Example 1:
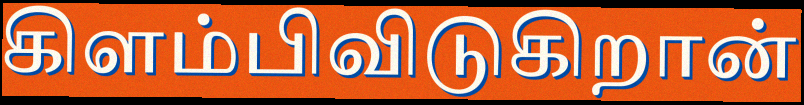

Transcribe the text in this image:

கிளம்பிவிடுகிறான்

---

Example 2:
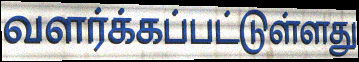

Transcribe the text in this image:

வளர்க்கப்பட்டுள்ளது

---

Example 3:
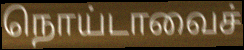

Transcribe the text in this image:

நொய்டாவைச்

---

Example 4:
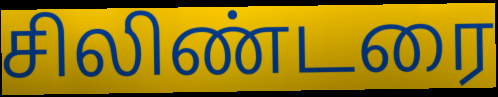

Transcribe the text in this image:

சிலிண்டரை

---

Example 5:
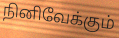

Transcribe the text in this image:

நினிவேக்கும்